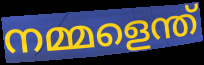
നമ്മളെന്ത്